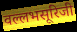
वल्लभसूरिजी